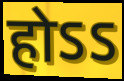
होऽऽ